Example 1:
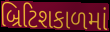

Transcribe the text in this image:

બ્રિટિશકાળમાં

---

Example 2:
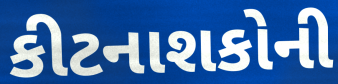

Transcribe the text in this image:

કીટનાશકોની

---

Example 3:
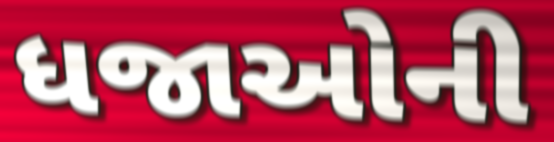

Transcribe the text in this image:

ધજાઓની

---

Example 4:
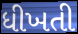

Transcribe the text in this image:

ધીખતી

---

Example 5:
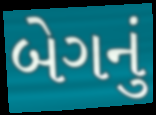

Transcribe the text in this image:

બેગનું